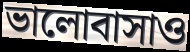
ভালোবাসাও